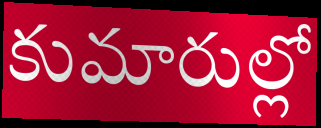
కుమారుల్లో